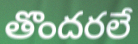
తొందరలే